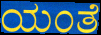
ಯಂತೆ